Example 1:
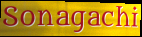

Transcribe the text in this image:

Sonagachi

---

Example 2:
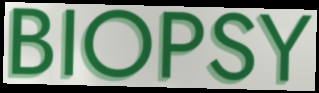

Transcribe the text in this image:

BIOPSY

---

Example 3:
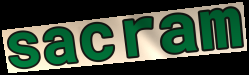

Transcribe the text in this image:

sacram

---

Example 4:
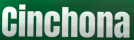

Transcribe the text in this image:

Cinchona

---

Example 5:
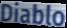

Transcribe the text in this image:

Diablo